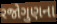
રજોગુણના